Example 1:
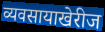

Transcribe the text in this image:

व्यवसायाखेरीज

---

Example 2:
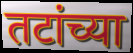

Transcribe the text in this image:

तटांच्या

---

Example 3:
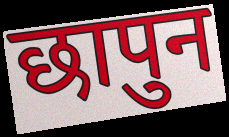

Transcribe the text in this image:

छापुन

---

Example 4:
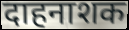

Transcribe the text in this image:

दाहनाशक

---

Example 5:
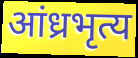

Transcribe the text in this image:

आंध्रभृत्य